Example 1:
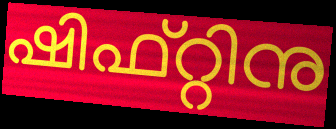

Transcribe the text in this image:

ഷിഫ്റ്റിനു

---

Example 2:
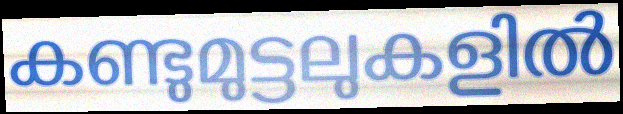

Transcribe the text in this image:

കണ്ടുമുട്ടലുകളിൽ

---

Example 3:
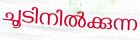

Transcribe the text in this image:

ചൂടിനിൽക്കുന്ന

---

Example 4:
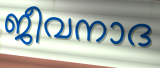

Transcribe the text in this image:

ജീവനാദ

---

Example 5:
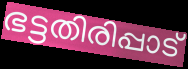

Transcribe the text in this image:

ഭട്ടതിരിപ്പാട്